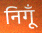
निगूँ